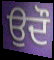
ਉਦੌ